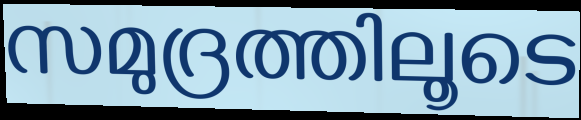
സമുദ്രത്തിലൂടെ